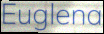
Euglena